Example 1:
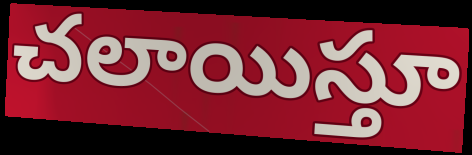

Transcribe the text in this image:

చలాయిస్తూ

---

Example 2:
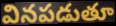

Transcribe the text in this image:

వినపడుతూ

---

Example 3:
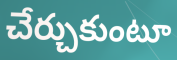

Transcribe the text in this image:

చేర్చుకుంటూ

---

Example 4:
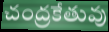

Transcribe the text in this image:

చంద్రకేతువు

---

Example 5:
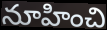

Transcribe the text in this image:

నూహించి